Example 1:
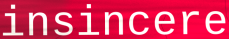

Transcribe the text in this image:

insincere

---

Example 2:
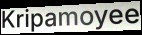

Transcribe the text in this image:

Kripamoyee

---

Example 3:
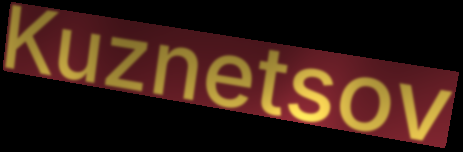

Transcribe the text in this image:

Kuznetsov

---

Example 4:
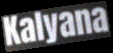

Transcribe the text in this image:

Kalyana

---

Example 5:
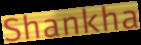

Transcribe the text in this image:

Shankha